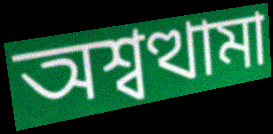
অশ্বত্থামা